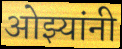
ओझ्यांनी